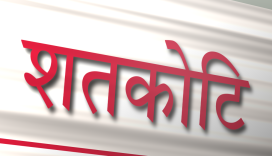
शतकोटि